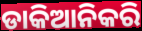
ଡାକିଆନିକରି